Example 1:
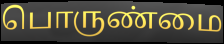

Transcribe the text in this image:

பொருண்மை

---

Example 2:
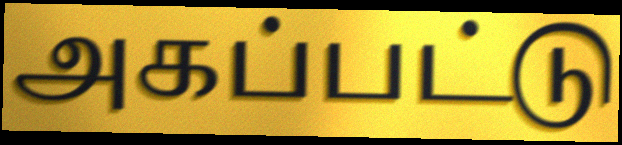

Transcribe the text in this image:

அகப்பட்டு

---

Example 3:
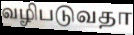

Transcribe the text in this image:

வழிபடுவதா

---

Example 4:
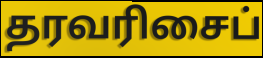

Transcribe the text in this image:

தரவரிசைப்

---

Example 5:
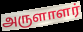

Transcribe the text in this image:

அருளாளர்